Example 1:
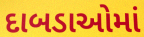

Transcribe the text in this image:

દાબડાઓમાં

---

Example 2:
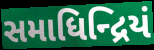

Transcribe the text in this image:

સમાધિન્દ્રિયં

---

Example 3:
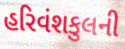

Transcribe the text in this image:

હરિવંશકુલની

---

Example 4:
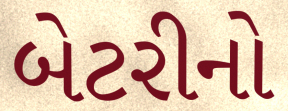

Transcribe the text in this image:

બેટરીનો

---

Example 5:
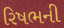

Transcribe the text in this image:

રિષભની